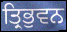
ਤ੍ਰਿਭੁਵਨ